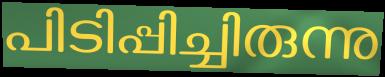
പിടിപ്പിച്ചിരുന്നു